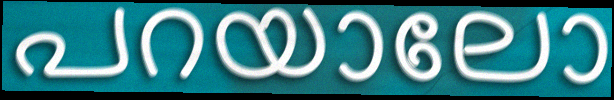
പറയാലോ